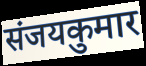
संजयकुमार